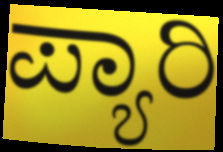
ಪ್ಯಾರಿ